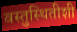
वस्तुस्थितीशी